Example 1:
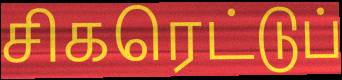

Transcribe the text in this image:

சிகரெட்டுப்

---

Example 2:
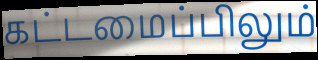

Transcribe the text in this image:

கட்டமைப்பிலும்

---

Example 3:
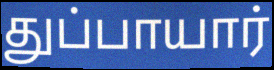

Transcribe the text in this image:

துப்பாயார்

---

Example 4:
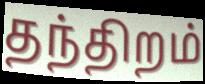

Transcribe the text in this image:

தந்திறம்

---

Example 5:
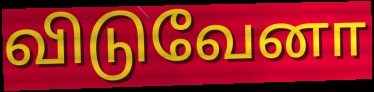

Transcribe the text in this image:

விடுவேனா